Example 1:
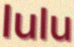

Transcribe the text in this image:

lulu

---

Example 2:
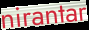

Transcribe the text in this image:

nirantar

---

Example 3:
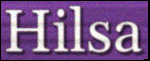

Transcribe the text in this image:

Hilsa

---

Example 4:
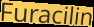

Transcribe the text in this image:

Furacilin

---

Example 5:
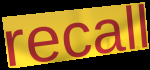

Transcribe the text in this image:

recall